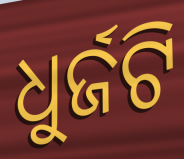
ଧୁର୍ଜଟି